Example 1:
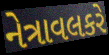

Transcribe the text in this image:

નેત્રાવલકરે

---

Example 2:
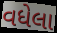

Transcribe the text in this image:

વધેલા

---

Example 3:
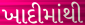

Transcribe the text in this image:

ખાદીમાંથી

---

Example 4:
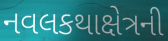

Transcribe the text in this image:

નવલકથાક્ષેત્રની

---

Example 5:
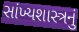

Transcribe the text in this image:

સાંખ્યશાસ્ત્રનું